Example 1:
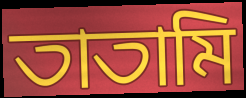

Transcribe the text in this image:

তাতামি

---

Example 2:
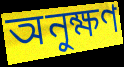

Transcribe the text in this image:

অনুক্ষণ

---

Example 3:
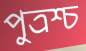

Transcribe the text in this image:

পুত্রশ্চ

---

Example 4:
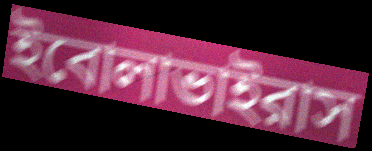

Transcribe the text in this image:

ইবোলাভাইরাস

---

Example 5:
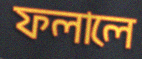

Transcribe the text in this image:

ফলালে